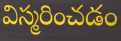
విస్మరించడం